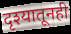
दृश्यातूनही